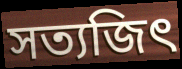
সত্যজিৎ